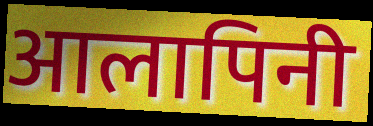
आलापिनी